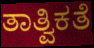
ತಾತ್ವಿಕತೆ